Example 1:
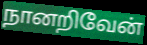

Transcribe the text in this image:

நானறிவேன்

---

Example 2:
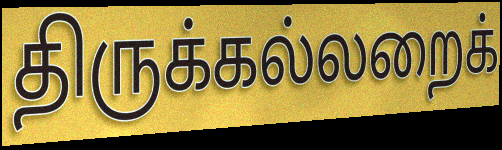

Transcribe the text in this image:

திருக்கல்லறைக்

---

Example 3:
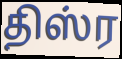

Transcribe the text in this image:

திஸ்ர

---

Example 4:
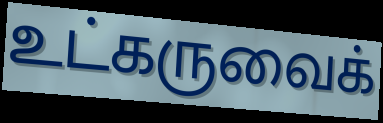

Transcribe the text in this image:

உட்கருவைக்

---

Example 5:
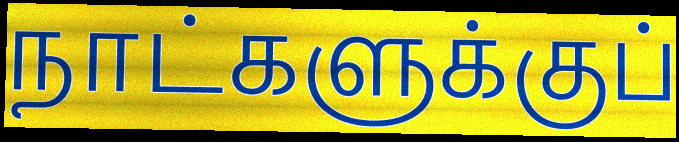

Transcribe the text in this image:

நாட்களுக்குப்